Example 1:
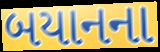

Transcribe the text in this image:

બયાનના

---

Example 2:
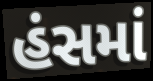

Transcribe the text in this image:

હંસમાં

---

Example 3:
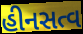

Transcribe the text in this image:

હીનસત્વ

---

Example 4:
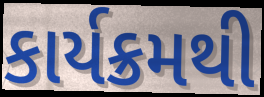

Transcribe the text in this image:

કાર્યક્રમથી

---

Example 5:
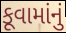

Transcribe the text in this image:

કૂવામાંનું